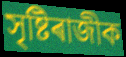
সৃষ্টিৰাজীক